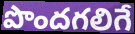
పొందగలిగే